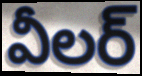
వీలర్